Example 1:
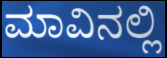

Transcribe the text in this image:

ಮಾವಿನಲ್ಲಿ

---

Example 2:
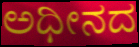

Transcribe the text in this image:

ಅಧೀನದ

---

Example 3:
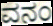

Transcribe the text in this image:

ವನಂ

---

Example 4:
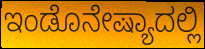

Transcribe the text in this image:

ಇಂಡೊನೇಷ್ಯಾದಲ್ಲಿ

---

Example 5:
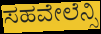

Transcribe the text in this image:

ಸಹವೇಲೆನ್ಸಿ